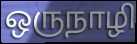
ஒருநாழி